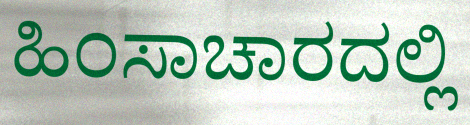
ಹಿಂಸಾಚಾರದಲ್ಲಿ